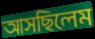
আসছিলেম